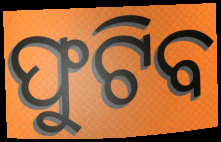
ଫୁଟିବ